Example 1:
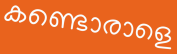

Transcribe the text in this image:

കണ്ടൊരാളെ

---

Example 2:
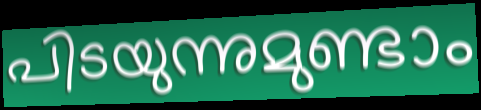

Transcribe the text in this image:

പിടയുന്നുമുണ്ടാം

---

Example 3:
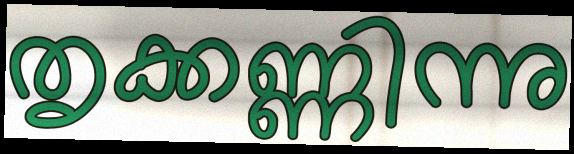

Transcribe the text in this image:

തൃക്കണ്ണിന്നു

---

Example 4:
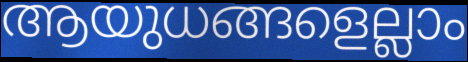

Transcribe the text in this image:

ആയുധങ്ങളെല്ലാം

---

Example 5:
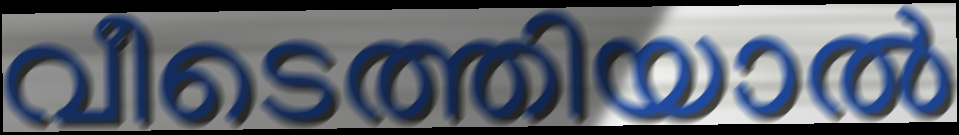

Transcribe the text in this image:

വീടെത്തിയാൽ